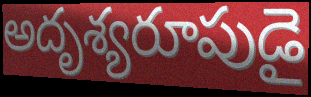
అదృశ్యరూపుడై